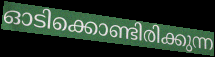
ഓടിക്കൊണ്ടിരിക്കുന്ന